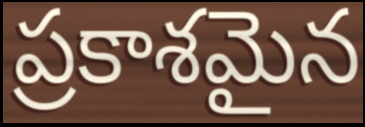
ప్రకాశమైన